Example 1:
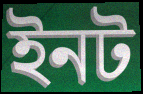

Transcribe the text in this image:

ইনট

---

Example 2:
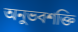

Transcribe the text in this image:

অনুভবশক্তি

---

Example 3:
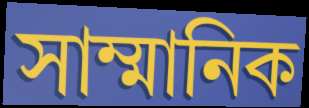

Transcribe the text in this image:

সাম্মানিক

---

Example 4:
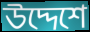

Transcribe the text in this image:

উদ্দেশে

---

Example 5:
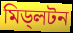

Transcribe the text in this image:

মিড্লটন